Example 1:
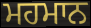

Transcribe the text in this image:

ਮਹਮਾਨ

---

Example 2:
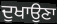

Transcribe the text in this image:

ਦੁਖਾਉਣਾ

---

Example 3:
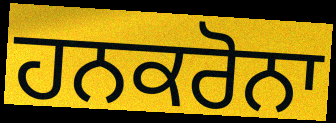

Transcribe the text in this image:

ਹਨਕਰੋਨਾ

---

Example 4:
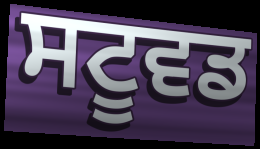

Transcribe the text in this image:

ਸਟੂਵਡ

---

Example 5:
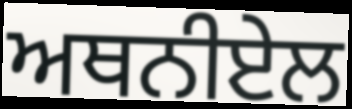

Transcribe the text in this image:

ਅਥਨੀਏਲ